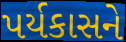
પર્યકાસને